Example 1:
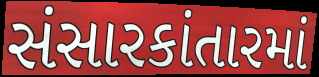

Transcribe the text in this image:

સંસારકાંતારમાં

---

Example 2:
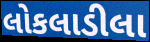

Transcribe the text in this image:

લોકલાડીલા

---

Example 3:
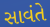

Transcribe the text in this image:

સાવંતે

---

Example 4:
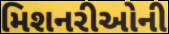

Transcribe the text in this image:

મિશનરીઓની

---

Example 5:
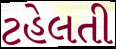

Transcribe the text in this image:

ટહેલતી